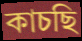
কাচছি